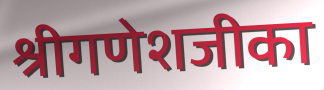
श्रीगणेशजीका